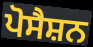
ਪੋਸੈਸ਼ਨ